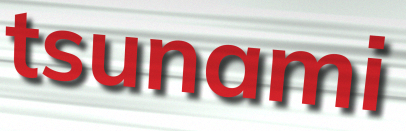
tsunami